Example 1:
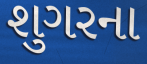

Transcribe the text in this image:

શુગરના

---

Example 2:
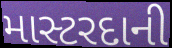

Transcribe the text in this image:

માસ્ટરદાની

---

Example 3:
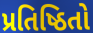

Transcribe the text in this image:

પ્રતિષ્ઠિતો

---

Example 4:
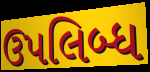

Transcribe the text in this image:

ઉપલિબ્ધ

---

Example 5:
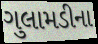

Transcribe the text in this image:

ગુલામડીના